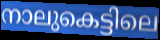
നാലുകെട്ടിലെ